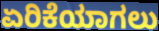
ಏರಿಕೆಯಾಗಲು